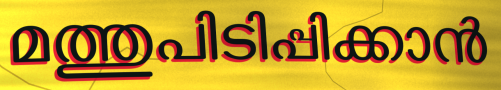
മത്തുപിടിപ്പിക്കാൻ